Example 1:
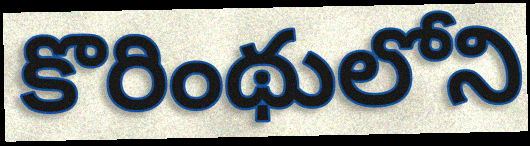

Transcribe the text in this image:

కొరింథులోని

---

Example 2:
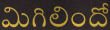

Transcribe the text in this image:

మిగిలిందో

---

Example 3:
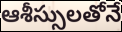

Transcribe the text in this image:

ఆశీస్సులతోనే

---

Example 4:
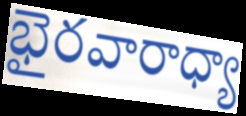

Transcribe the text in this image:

భైరవారాధ్యా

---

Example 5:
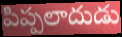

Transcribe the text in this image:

పిప్పలాదుడు